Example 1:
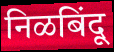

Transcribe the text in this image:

निळबिंदू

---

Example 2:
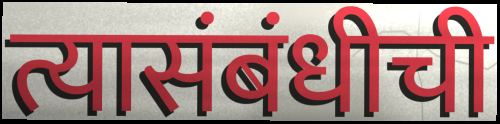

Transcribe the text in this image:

त्यासंबंधीची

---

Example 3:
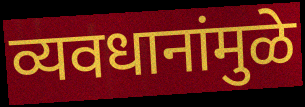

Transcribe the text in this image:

व्यवधानांमुळे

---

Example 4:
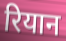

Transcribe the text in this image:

रियान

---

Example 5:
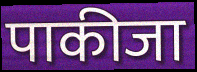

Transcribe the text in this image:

पाकीजा